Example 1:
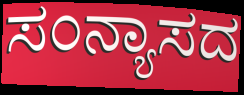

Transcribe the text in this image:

ಸಂನ್ಯಾಸದ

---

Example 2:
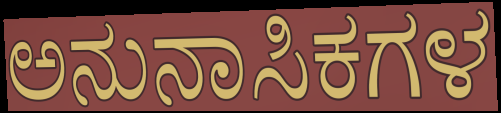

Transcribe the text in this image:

ಅನುನಾಸಿಕಗಳ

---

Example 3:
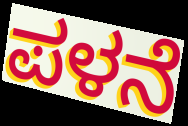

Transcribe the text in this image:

ಪಳನೆ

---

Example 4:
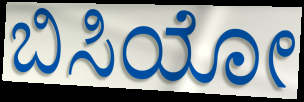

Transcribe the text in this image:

ಬಿಸಿಯೋ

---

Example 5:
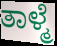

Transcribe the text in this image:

ತಾಳ್ಮೆ